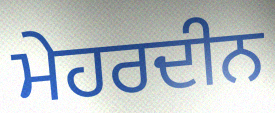
ਮੇਹਰਦੀਨ